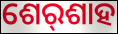
ଶେର୍‌ଶାହ